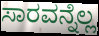
ಸಾರವನ್ನೆಲ್ಲ